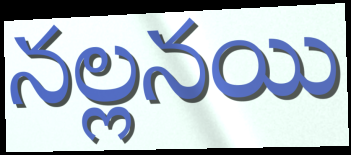
నల్లనయి